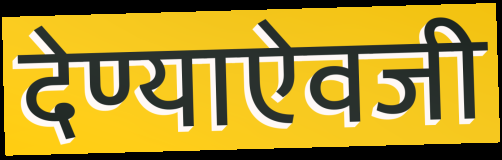
देण्याऐवजी